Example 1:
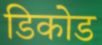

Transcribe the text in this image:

डिकोड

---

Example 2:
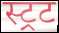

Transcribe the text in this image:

स्ट्रट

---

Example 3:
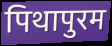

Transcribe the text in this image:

पिथापुरम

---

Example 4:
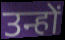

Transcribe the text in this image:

उन्हों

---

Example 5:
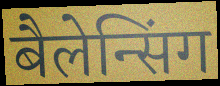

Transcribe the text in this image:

बैलेन्सिंग